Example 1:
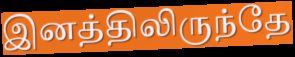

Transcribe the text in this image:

இனத்திலிருந்தே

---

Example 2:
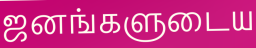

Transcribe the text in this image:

ஜனங்களுடைய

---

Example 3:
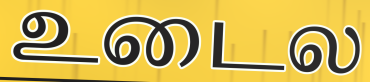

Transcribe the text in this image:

உடைல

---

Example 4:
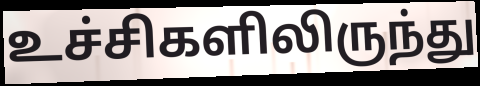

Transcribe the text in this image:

உச்சிகளிலிருந்து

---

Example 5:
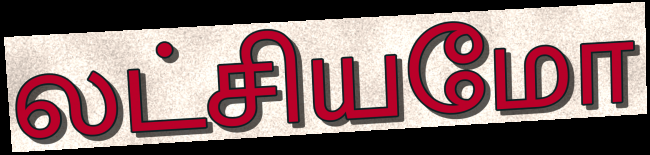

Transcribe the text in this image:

லட்சியமோ